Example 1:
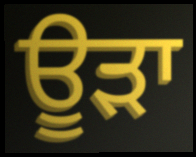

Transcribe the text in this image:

ਊੜਾ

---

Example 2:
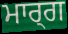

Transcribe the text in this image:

ਮਾਰ੍ਗ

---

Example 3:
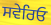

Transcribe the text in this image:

ਸਵੇਰਿਓ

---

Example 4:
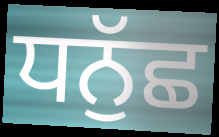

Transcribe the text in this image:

ਧਨੁੱਛ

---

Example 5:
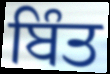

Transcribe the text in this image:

ਬਿੰਤ